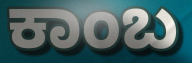
ಕಾಂಬ